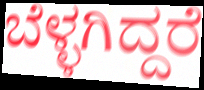
ಬೆಳ್ಳಗಿದ್ದರೆ